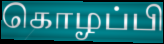
கொழப்பி